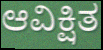
ಆವಿಕ್ಷಿತ